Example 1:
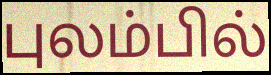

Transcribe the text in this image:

புலம்பில்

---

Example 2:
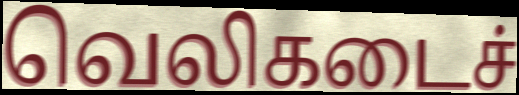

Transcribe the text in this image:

வெலிகடைச்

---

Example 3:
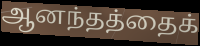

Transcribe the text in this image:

ஆனந்தத்தைக்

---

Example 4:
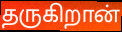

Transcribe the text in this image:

தருகிறான்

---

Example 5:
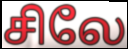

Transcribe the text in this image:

சிலே